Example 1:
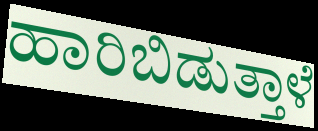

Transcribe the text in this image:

ಹಾರಿಬಿಡುತ್ತಾಳೆ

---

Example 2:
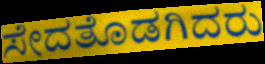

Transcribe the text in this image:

ಸೇದತೊಡಗಿದರು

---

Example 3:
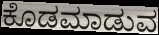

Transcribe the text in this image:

ಕೊಡಮಾಡುವ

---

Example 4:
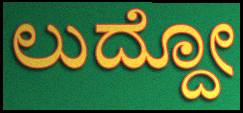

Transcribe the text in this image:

ಲುದ್ದೋ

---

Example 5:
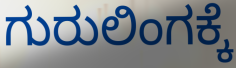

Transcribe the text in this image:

ಗುರುಲಿಂಗಕ್ಕೆ